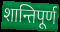
शान्तिपूर्ण